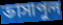
ভাসাপুল